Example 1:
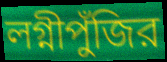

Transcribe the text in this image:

লগ্নীপুঁজির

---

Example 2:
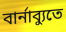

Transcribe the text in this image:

বার্নাব্যুতে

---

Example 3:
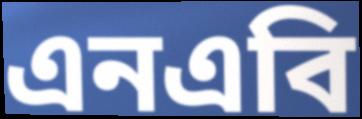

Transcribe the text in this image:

এনএবি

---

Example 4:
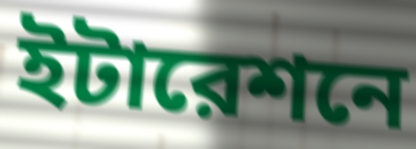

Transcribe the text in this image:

ইটারেশনে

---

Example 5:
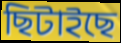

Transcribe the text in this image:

ছিটাইছে